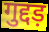
गुद्दड़